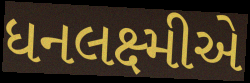
ધનલક્ષ્મીએ